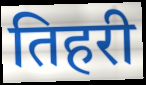
तिहरी